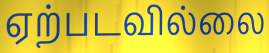
ஏற்படவில்லை